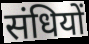
संधियों